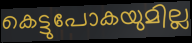
കെട്ടുപോകയുമില്ല